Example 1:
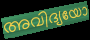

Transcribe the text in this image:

അവിദ്യയോ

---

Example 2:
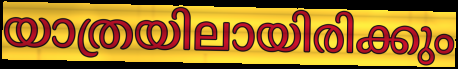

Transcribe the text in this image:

യാത്രയിലായിരിക്കും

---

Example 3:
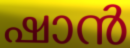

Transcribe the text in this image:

ഷാൻ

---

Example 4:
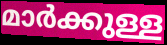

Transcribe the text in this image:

മാർക്കുള്ള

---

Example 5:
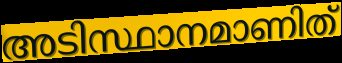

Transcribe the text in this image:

അടിസ്ഥാനമാണിത്